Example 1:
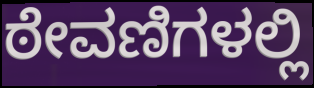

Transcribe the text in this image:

ಠೇವಣಿಗಳಲ್ಲಿ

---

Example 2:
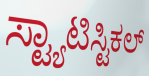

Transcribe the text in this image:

ಸ್ಟ್ಯಾಟಿಸ್ಟಿಕಲ್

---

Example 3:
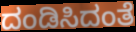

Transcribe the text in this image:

ದಂಡಿಸಿದಂತೆ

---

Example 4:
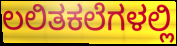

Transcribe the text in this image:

ಲಲಿತಕಲೆಗಳಲ್ಲಿ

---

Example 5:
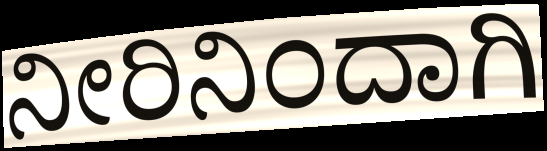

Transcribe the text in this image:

ನೀರಿನಿಂದಾಗಿ